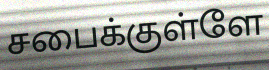
சபைக்குள்ளே